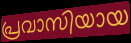
പ്രവാസിയായ